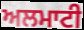
ਅਲਮਾਟੀ